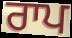
ਰਾਪ